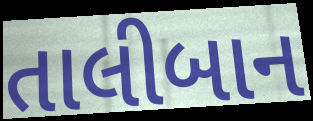
તાલીબાન